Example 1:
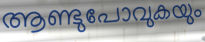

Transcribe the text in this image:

ആണ്ടുപോവുകയും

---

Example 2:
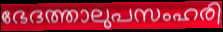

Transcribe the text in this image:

ഭേദത്താലുപസംഹരി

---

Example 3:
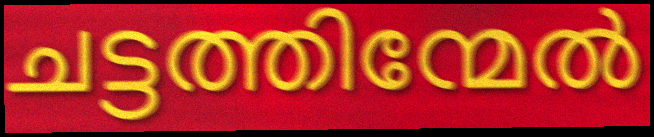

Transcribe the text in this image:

ചട്ടത്തിന്മേൽ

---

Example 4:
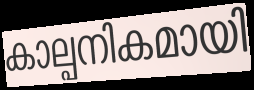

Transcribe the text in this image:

കാല്പനികമായി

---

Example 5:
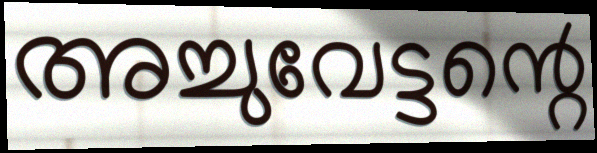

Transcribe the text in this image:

അച്ചുവേട്ടന്റെ